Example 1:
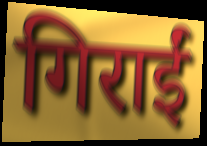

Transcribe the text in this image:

गिराईं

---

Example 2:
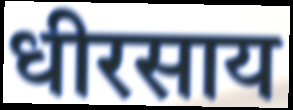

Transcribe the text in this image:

धीरसाय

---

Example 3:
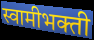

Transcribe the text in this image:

स्वामीभक्ती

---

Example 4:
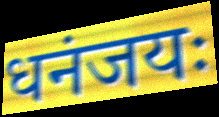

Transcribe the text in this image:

धनंजयः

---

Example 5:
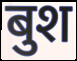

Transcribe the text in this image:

बुश